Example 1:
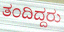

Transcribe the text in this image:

ತಂದಿದ್ದರು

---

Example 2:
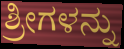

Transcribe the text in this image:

ಶ್ರೀಗಳನ್ನು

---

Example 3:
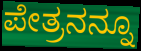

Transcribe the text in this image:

ಪೇತ್ರನನ್ನೂ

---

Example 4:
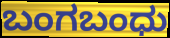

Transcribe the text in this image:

ಬಂಗಬಂಧು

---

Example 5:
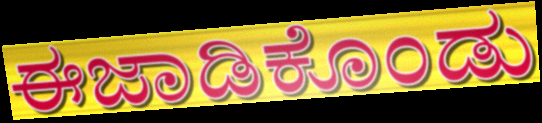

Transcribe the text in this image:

ಈಜಾಡಿಕೊಂಡು